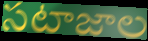
సటాజాల